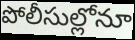
పోలీసుల్లోనూ